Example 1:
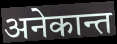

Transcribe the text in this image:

अनेकान्त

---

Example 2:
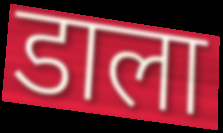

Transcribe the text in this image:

डाला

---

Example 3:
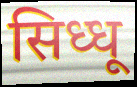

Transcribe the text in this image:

सिध्धू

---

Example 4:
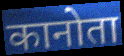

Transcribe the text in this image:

कानोता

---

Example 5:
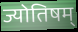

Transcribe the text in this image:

ज्योतिषम्